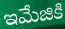
ఇమేజికి